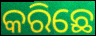
କରିଛେ